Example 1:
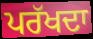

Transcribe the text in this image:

ਪਰੱਖਦਾ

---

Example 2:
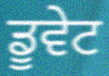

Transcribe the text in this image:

ਡੂਵੇਟ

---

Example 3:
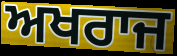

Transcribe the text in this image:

ਅਖਰਾਜ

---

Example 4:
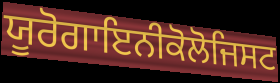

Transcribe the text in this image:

ਯੂਰੋਗਾਇਨੀਕੋਲੋਜਿਸਟ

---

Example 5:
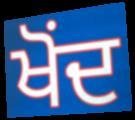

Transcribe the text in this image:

ਖੋਂਦ